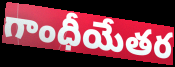
గాంధీయేతర